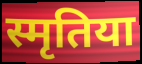
स्मृतिया